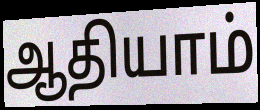
ஆதியாம்